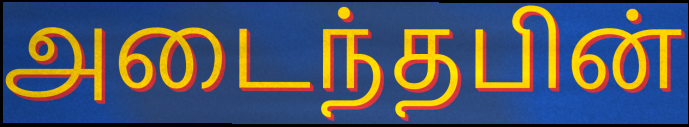
அடைந்தபின்